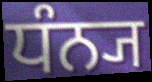
ਧੰਨ੍ਯ